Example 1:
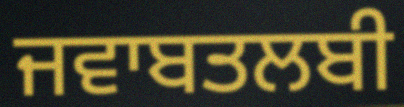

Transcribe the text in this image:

ਜਵਾਬਤਲਬੀ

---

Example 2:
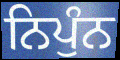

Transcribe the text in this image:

ਨਿਪੁੰਨ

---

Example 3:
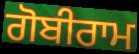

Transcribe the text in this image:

ਗੋਬੀਰਾਮ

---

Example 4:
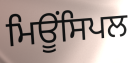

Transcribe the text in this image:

ਮਿਊਂਸਿਪਲ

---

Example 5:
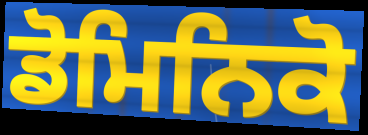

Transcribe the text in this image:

ਡੋਮਿਨਿਕੋ